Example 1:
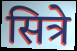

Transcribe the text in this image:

सित्रे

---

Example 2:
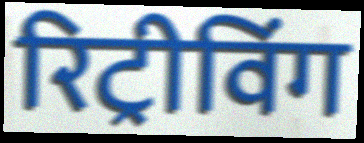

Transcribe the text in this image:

रिट्रीविंग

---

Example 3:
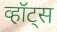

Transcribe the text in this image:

व्हॉट्स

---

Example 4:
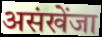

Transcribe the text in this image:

असंखेंजा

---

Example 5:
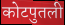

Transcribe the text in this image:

कोटपुतली